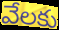
వేలకు